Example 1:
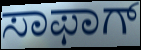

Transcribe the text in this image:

ಸಾಫಾಗ್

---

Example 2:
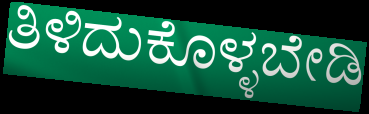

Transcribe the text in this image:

ತಿಳಿದುಕೊಳ್ಳಬೇಡಿ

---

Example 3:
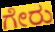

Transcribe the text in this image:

ಗೇರು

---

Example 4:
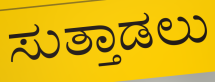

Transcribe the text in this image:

ಸುತ್ತಾಡಲು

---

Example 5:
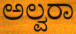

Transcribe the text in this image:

ಅಲ್ವರಾ